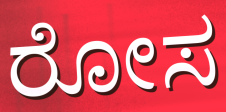
ರೋಸ